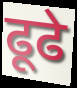
ढूढे